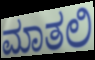
ಮಾತಲಿ